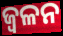
ଜ୍ଵଳନ